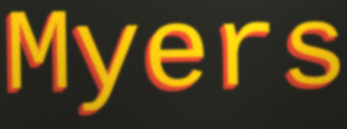
Myers